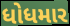
ધોધમાર